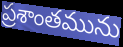
ప్రశాంతమును